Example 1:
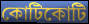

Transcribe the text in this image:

কোটিকোটি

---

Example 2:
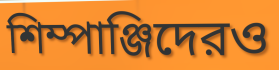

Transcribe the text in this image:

শিম্পাঞ্জিদেরও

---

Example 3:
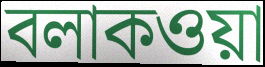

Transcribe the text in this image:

বলাকওয়া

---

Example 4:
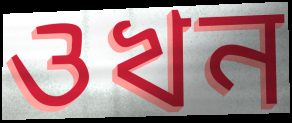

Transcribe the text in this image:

ওখন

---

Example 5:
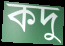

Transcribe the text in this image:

কদু